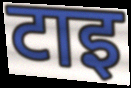
टाइ